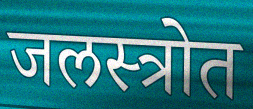
जलस्त्रोत